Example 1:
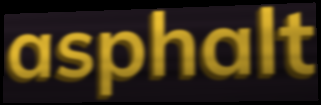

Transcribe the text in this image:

asphalt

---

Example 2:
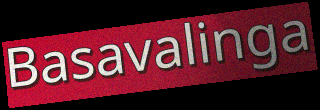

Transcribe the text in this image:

Basavalinga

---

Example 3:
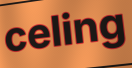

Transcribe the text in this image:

celing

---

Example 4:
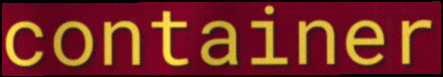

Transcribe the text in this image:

container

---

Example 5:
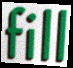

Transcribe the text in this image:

fill